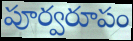
పూర్వరూపం